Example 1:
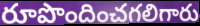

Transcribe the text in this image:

రూపొందించగలిగారు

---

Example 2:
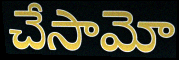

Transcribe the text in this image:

చేసామో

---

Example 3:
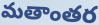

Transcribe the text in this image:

మతాంతర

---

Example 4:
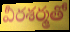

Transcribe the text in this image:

వీరశర్మతో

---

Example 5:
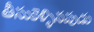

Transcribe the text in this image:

తీసుకెళ్ళినపుడు